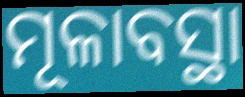
ମୂଳାବସ୍ଥା